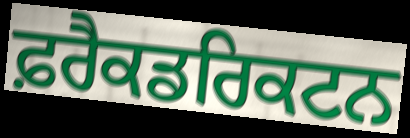
ਫ਼ਰੈਕਡਰਿਕਟਨ